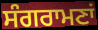
ਸੰਗਰਾਮਣਾਂ